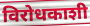
विरोधकाशी